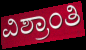
ವಿಶ್ರಾಂತಿ